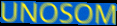
UNOSOM